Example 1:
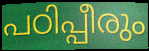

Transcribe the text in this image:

പഠിപ്പീരും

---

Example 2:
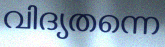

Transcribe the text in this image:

വിദ്യതന്നെ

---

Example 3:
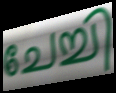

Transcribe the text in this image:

ചേച്ചി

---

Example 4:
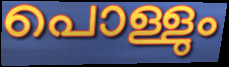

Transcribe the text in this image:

പൊള്ളും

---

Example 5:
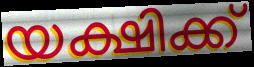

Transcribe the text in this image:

യക്ഷിക്ക്